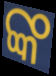
ଙ୍କ